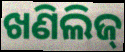
ଖଣିଲିଜ୍